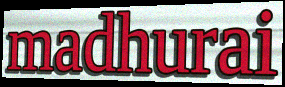
madhurai